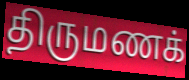
திருமணக்